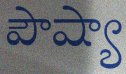
పౌష్యా